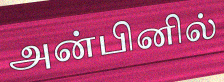
அன்பினில்